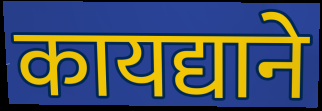
कायद्याने